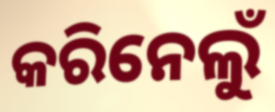
କରିନେଲୁଁ